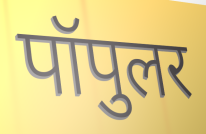
पॉपुलर